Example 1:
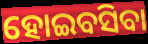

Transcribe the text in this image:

ହୋଇବସିବା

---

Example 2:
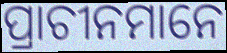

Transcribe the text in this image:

ପ୍ରାଚୀନମାନେ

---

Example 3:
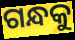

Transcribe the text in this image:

ଗନ୍ଧକୁ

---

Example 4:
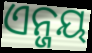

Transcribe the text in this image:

ଏନ୍ଜୟ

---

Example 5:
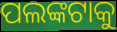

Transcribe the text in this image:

ପଲଙ୍କଟାକୁ